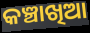
କଞ୍ଚାଖିଆ